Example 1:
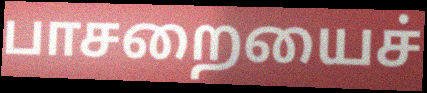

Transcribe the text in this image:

பாசறையைச்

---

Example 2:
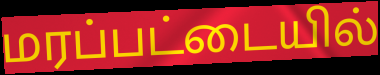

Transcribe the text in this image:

மரப்பட்டையில்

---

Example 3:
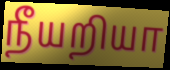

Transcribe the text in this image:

நீயறியா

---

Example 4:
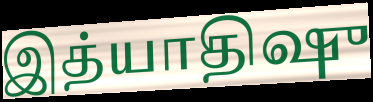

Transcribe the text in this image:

இத்யாதிஷு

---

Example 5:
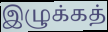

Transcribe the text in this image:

இழுக்கத்